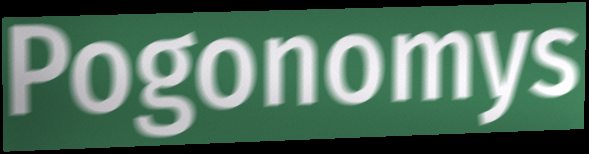
Pogonomys